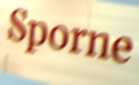
Sporne